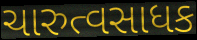
ચારુત્વસાધક